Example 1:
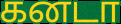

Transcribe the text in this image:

கனடா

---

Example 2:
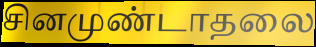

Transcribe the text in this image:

சினமுண்டாதலை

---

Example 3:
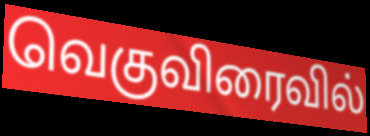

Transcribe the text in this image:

வெகுவிரைவில்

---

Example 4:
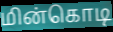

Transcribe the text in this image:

மின்கொடி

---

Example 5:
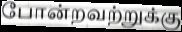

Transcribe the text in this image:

போன்றவற்றுக்கு